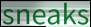
sneaks